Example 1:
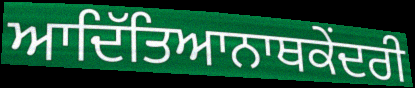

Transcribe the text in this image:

ਆਦਿੱਤਿਆਨਾਥਕੇਂਦਰੀ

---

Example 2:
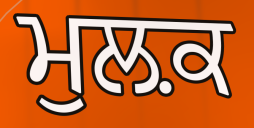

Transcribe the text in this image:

ਮੁਲ਼ਕ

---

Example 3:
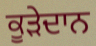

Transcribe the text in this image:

ਕੂੜੇਦਾਨ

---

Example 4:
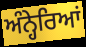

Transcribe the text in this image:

ਅੰਨ੍ਹੇਰਿਆਂ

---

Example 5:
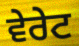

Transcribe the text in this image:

ਵੇਰੇਟ